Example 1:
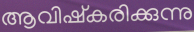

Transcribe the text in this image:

ആവിഷ്കരിക്കുന്നു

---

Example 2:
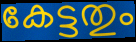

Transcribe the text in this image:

കേട്ടതും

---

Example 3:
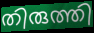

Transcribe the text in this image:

തിരുത്തി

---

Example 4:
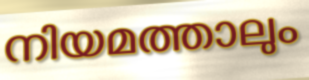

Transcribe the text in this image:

നിയമത്താലും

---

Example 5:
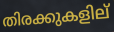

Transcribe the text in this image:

തിരക്കുകളില്